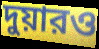
দুয়ারও